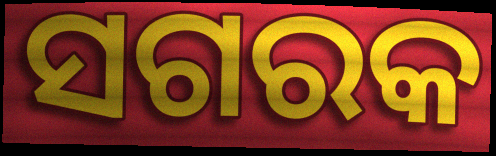
ସଗରକ